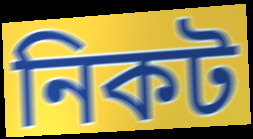
নিকট